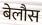
बेलौस